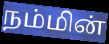
நம்மின்